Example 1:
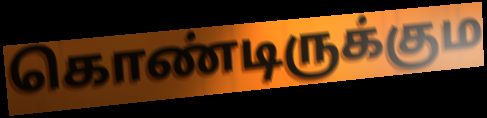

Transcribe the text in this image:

கொண்டிருக்கும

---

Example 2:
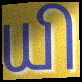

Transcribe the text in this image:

யி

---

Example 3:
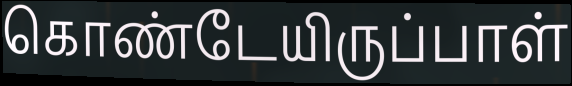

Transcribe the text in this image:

கொண்டேயிருப்பாள்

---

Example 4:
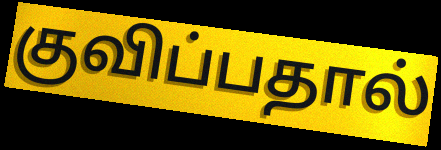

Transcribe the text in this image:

குவிப்பதால்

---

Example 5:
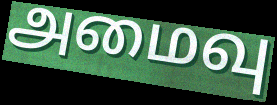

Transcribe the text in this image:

அமைவு